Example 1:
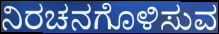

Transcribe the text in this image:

ನಿರಚನಗೊಳಿಸುವ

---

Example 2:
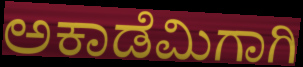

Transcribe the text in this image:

ಅಕಾಡೆಮಿಗಾಗಿ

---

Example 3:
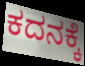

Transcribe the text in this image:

ಕದನಕ್ಕೆ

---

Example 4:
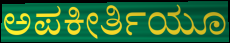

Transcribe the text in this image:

ಅಪಕೀರ್ತಿಯೂ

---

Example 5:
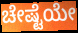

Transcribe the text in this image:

ಚೇಷ್ಟೆಯೇ